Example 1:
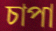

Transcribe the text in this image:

চাপা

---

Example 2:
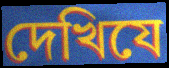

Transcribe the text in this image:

দেখিযে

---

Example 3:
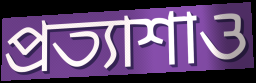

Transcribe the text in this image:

প্রত্যাশাও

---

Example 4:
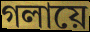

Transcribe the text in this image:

গলায়ে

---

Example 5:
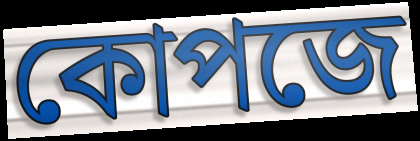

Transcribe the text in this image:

কোপজে